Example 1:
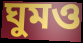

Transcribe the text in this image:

ঘুমও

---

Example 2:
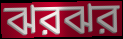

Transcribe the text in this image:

ঝরঝর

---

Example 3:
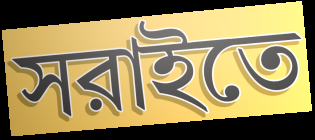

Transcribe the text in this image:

সরাইতে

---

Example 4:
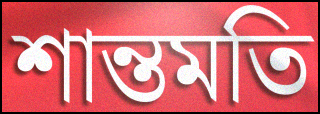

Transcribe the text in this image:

শান্তমতি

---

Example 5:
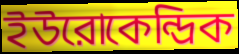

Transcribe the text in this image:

ইউরোকেন্দ্রিক